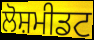
ਲੋਸ਼ਮੀਡਟ